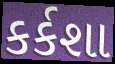
કર્કશા